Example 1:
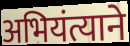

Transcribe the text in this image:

अभियंत्याने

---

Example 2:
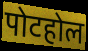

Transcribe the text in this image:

पोटहोल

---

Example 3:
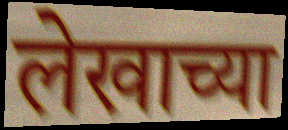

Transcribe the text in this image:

लेखाच्या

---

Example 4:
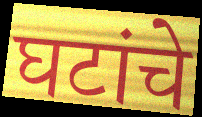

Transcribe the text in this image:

घटांचे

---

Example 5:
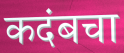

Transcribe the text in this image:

कदंबचा